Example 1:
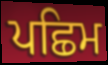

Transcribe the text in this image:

ਪਛਿਮ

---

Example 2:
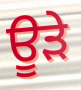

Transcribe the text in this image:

ਊੜੇ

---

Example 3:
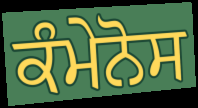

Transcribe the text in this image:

ਕੰਮੇਨੋਸ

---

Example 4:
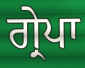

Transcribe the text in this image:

ਗ੍ਰੇਪਾ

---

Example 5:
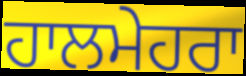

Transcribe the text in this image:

ਹਾਲਮੇਹਰਾ